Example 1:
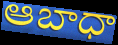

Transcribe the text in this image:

ఆబాధా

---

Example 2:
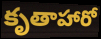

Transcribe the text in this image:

కృతాహారో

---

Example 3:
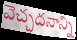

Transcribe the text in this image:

వెచ్చదనాన్ని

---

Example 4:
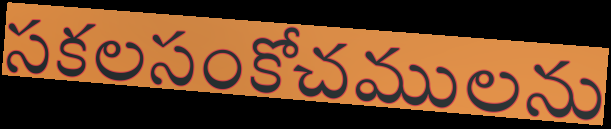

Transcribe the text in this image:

సకలసంకోచములను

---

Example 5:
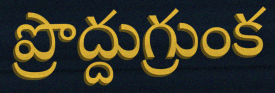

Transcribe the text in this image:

ప్రొద్దుగ్రుంక